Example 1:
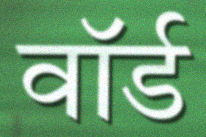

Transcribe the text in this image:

वॉर्ड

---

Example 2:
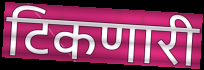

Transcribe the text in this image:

टिकणारी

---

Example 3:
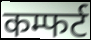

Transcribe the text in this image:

कम्फर्ट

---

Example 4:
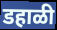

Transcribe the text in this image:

डहाळी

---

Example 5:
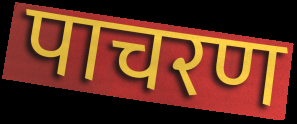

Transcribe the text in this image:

पाचरण